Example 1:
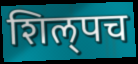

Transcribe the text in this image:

शिल्पच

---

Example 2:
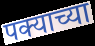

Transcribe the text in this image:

पक्याच्या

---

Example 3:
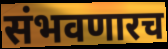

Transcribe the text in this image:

संभवणारच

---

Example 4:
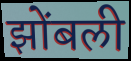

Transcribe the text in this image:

झोंबली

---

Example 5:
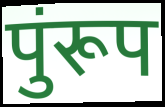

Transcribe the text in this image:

पुंरूप